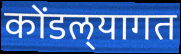
कोंडल्यागत